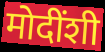
मोदींशी